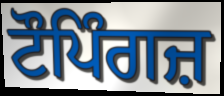
ਟੌਪਿੰਗਜ਼